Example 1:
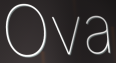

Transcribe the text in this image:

Ova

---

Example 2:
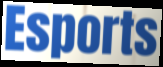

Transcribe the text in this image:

Esports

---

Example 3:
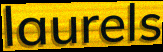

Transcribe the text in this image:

laurels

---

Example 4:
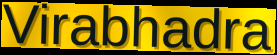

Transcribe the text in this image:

Virabhadra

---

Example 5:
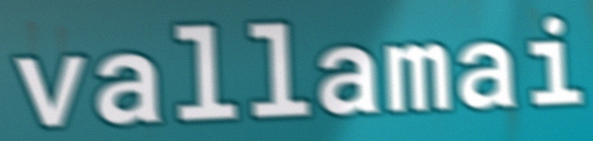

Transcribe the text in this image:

vallamai